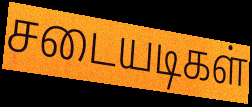
சடையடிகள்